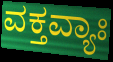
ವಕ್ತವ್ಯಾಃ